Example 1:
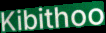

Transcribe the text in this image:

Kibithoo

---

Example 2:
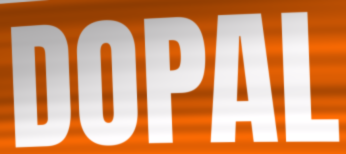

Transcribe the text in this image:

DOPAL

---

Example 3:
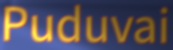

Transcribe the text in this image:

Puduvai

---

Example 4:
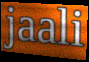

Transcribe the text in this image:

jaali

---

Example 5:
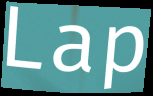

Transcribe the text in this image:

Lap